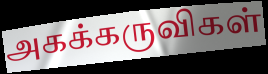
அகக்கருவிகள்